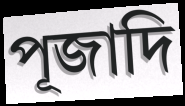
পূজাদি